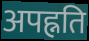
अपह्नति